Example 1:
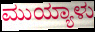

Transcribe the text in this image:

ಮುಯ್ಯಾಳು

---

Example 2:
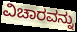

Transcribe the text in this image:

ವಿಚಾರವನ್ನು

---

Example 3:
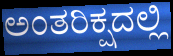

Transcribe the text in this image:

ಅಂತರಿಕ್ಷದಲ್ಲಿ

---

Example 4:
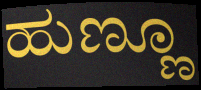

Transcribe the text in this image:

ಹುಣ್ಣೂ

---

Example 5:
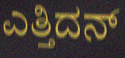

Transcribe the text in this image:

ಎತ್ತಿದನ್